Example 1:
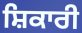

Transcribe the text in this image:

ਸ਼ਿਕਾਰੀ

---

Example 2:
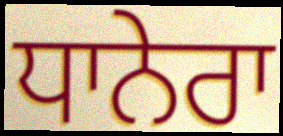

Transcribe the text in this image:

ਧਾਨੇਰਾ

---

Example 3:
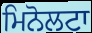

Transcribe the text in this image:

ਮਿਨੋਲਟਾ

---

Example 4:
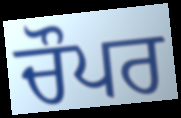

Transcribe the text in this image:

ਚੌਪਰ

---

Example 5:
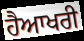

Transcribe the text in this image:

ਹੈਆਖਰੀ